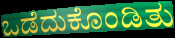
ಒಡೆದುಕೊಂಡಿತು